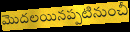
మొదలయినప్పటినుంచీ